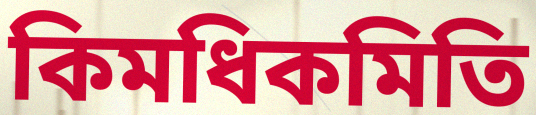
কিমধিকমিতি